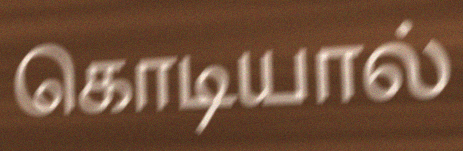
கொடியால்